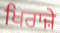
ਖਿਰਾਜ਼ੇ